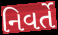
નિવર્તે